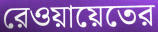
রেওয়ায়েতের